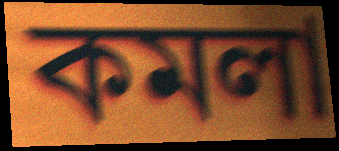
কমলা